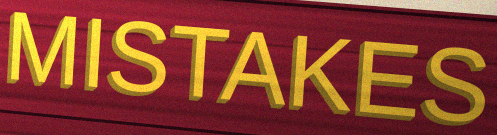
MISTAKES